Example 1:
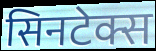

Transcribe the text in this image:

सिनटेक्स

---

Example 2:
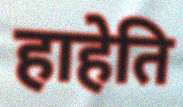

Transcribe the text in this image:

हाहेति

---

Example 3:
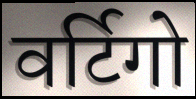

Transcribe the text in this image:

वर्टिगो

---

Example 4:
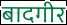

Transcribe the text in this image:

बादगीर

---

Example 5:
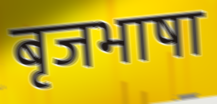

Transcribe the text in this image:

बृजभाषा